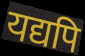
यद्यपि